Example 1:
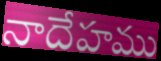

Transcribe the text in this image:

నాదేహము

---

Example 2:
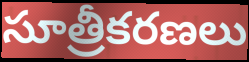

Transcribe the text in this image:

సూత్రీకరణలు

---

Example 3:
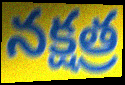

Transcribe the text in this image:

నక్షత్ర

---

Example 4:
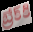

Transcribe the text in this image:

బ్రేక్‌కి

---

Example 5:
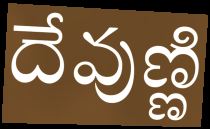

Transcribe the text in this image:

దేవుణ్ణి